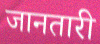
जानतारी